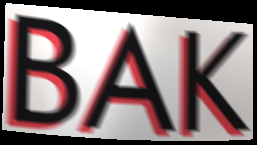
BAK